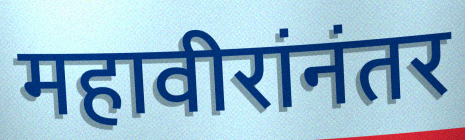
महावीरांनंतर